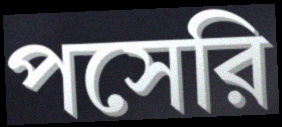
পসেরি